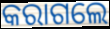
କରାଗଲେ